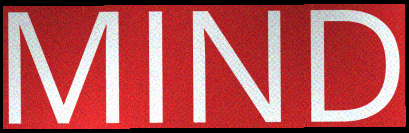
MIND